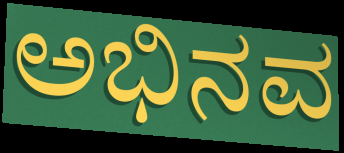
ಅಭಿನವ